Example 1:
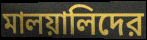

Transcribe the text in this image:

মালয়ালিদের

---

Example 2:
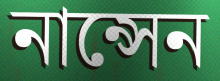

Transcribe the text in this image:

নান্সেন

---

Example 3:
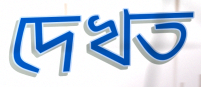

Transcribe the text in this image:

দেখত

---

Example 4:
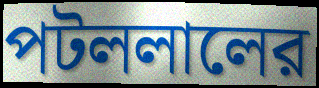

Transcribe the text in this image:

পটললালের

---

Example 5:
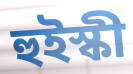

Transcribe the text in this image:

হুইস্কী